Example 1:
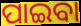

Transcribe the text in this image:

ପାଇବା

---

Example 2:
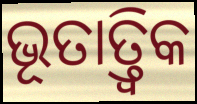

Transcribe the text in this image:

ଭୂତାତ୍ତ୍ୱିକ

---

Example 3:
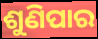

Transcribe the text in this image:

ଶୁଣିପାର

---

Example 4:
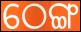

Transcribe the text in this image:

ଠେଙ୍ଗ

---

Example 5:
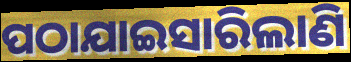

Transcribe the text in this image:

ପଠାଯାଇସାରିଲାଣି